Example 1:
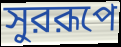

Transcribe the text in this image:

সুররূপে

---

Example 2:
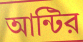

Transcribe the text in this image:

আন্টির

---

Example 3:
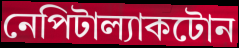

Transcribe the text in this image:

নেপিটাল্যাকটোন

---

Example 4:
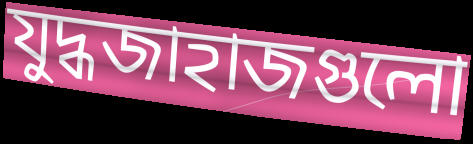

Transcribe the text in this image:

যুদ্ধজাহাজগুলো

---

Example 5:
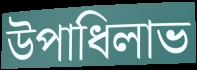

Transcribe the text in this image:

উপাধিলাভ